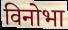
विनोभा